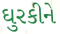
ઘુરકીને